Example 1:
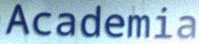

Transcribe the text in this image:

Academia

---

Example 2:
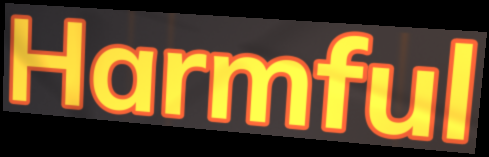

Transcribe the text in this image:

Harmful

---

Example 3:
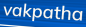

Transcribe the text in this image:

vakpatha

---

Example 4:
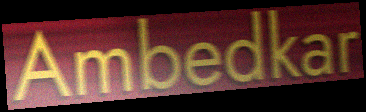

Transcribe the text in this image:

Ambedkar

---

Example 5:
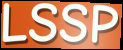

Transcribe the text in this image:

LSSP